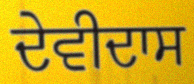
ਦੇਵੀਦਾਸ